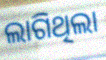
ଲାଗିଥିଲା